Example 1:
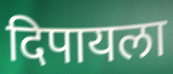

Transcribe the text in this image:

दिपायला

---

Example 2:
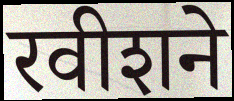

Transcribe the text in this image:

रवीशने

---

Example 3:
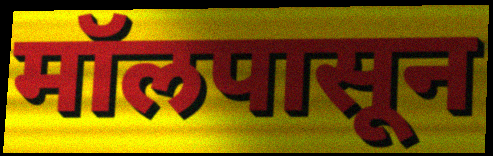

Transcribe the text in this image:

मॉलपासून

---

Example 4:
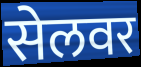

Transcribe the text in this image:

सेलवर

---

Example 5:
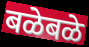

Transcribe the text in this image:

बळेबळे